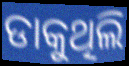
ଡାକୁଥିଲି